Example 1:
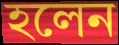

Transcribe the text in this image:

হলেন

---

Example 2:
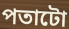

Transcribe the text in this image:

পতাটো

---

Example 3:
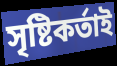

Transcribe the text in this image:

সৃষ্টিকৰ্তাই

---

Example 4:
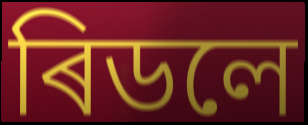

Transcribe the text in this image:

ৰিডলে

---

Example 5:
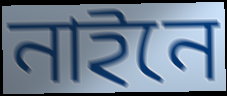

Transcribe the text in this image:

নাইনে